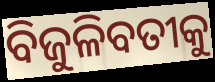
ବିଜୁଳିବତୀକୁ